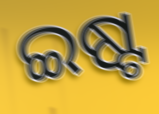
ଇଷ୍ଟ